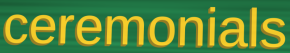
ceremonials